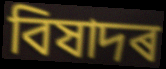
বিষাদৰ